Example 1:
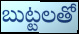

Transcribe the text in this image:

బుట్టలతో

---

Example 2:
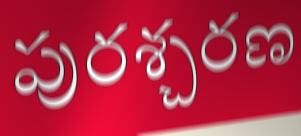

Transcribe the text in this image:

పురశ్చరణ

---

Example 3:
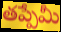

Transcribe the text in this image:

తప్పేమీ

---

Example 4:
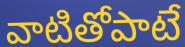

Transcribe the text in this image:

వాటితోపాటే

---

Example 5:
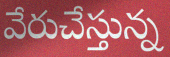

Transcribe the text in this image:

వేరుచేస్తున్న